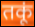
तकूं